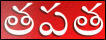
తపత